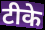
टीके